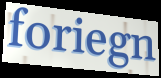
foriegn